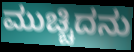
ಮುಚ್ಚಿದನು